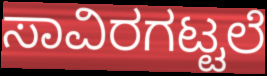
ಸಾವಿರಗಟ್ಟಲೆ